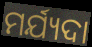
ମର୍ଯ୍ୟଦା